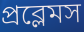
প্রব্লেমস